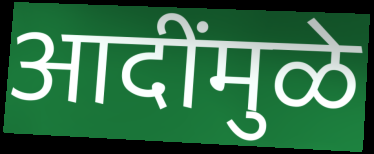
आदींमुळे